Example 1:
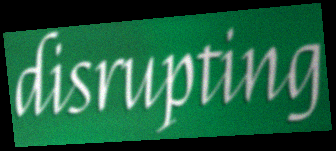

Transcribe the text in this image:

disrupting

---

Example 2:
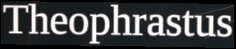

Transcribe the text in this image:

Theophrastus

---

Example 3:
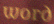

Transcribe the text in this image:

word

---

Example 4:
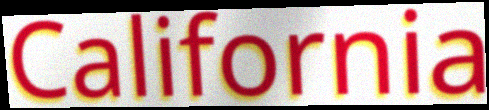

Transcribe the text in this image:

California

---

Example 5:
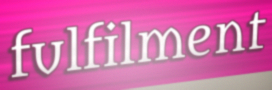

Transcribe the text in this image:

fulfilment